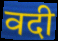
वदी